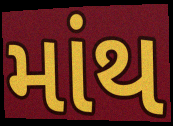
માંથ